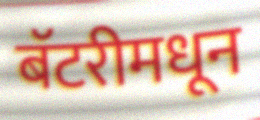
बॅटरीमधून